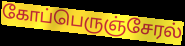
கோப்பெருஞ்சேரல்